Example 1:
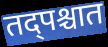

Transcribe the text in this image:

तद्पश्चात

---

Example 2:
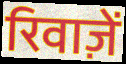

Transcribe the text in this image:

रिवाज़ें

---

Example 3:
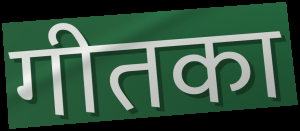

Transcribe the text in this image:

गीतका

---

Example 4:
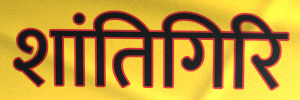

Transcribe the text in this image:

शांतिगिरि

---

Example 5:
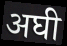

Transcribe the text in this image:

अघी